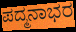
ಪದ್ಮನಾಭರ